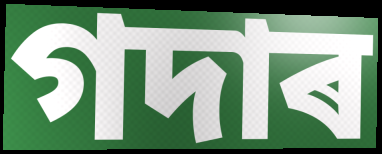
গদাৰ